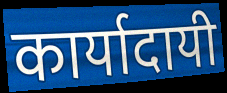
कार्यादायी